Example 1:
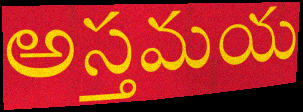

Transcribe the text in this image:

అస్తమయ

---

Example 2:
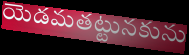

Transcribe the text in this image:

యెడమతట్టునకును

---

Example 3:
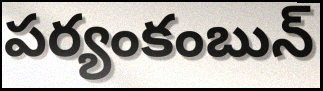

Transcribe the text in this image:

పర్యంకంబున్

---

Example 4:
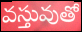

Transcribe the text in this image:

వస్తువుతో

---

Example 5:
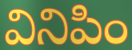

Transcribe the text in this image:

వినిపిం